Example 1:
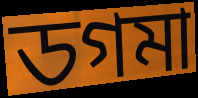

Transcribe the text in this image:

ডগমা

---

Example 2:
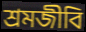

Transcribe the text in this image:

শ্রমজীবি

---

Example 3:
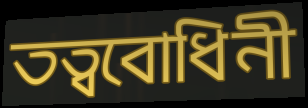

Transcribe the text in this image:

তত্ববোধিনী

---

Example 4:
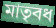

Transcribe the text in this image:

মাতৃবধ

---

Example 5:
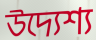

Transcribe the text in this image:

উদ্যেশ্য